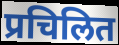
प्रचिलित